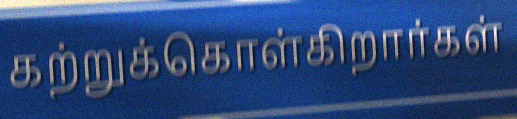
கற்றுக்கொள்கிறார்கள்